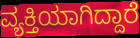
ವ್ಯಕ್ತಿಯಾಗಿದ್ದಾರೆ